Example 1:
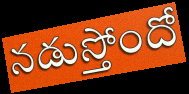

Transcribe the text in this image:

నడుస్తోందో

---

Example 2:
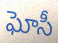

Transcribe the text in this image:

ఘోసీ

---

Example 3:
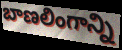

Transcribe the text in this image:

బాణలింగాన్ని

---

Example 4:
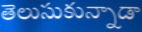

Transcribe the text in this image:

తెలుసుకున్నాడా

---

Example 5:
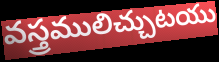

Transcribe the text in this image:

వస్త్రములిచ్చుటయు